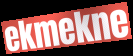
ekmekne